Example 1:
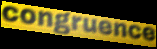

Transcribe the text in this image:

congruence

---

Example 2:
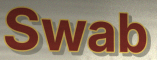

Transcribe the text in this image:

Swab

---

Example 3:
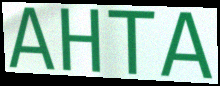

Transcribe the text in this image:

AHTA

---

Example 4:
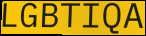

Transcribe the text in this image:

LGBTIQA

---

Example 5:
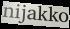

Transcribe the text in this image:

nijakko